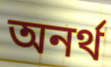
অনর্থ